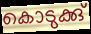
കൊടുക്കു്